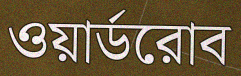
ওয়ার্ডরোব